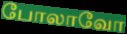
போலாவோ